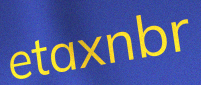
etaxnbr